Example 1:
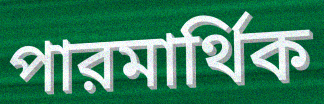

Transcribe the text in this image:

পারমার্থিক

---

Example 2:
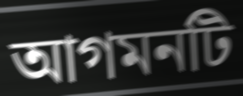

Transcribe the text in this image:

আগমনটি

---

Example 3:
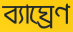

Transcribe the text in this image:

ব্যাঘ্রেণ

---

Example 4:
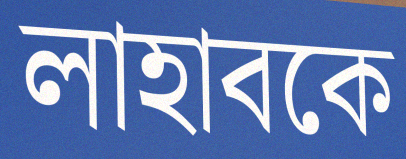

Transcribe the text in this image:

লাহাবকে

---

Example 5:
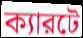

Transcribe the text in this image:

ক্যারটে